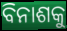
ବିନାଶକୁ